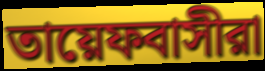
তায়েফবাসীরা